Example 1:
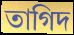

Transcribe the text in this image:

তাগিদ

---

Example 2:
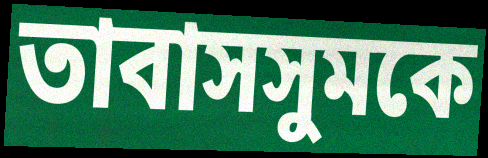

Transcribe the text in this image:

তাবাসসুমকে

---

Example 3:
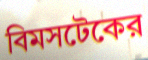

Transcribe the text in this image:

বিমসটেকের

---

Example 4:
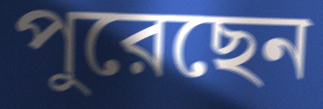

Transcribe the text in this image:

পুরেছেন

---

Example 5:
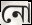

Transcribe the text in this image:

নো